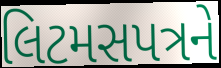
લિટમસપત્રને